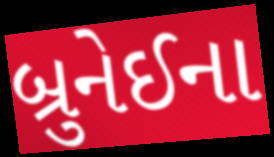
બ્રુનેઈના